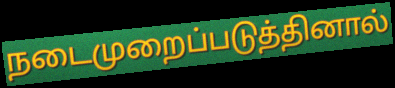
நடைமுறைப்படுத்தினால்